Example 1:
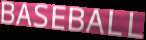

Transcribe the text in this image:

BASEBALL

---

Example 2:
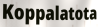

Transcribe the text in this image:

Koppalatota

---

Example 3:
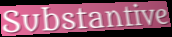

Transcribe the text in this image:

Substantive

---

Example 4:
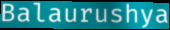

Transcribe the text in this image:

Balaurushya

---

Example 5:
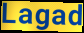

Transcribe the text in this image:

Lagad